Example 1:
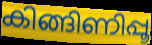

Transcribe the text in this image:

കിങ്ങിണിപ്പൂ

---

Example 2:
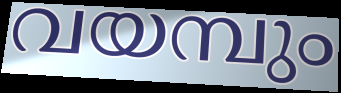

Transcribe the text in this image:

വയമ്പും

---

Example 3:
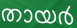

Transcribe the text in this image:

തായർ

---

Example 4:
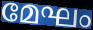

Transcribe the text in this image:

മേഘം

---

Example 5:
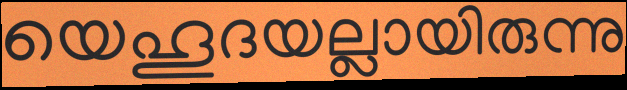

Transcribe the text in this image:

യെഹൂദയല്ലായിരുന്നു